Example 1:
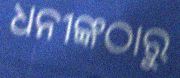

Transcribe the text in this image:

ଧନୀଙ୍କଠାରୁ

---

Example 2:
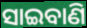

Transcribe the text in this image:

ସାଇବାଣି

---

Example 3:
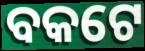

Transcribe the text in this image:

ବକଟେ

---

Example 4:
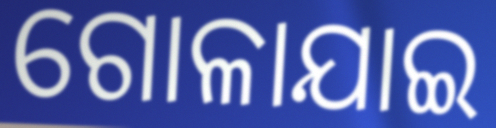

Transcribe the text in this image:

ଗୋଳାଯାଇ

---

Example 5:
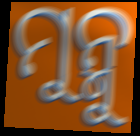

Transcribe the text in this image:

ମୁନ୍ମୁ